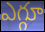
ఎగ్గూ